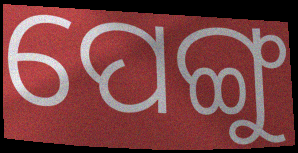
ପେଙ୍ଗୁ